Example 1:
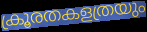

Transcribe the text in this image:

ക്രൂരതകളത്രയും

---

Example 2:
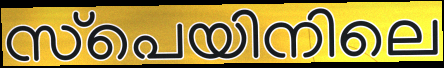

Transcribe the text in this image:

സ്‌പെയിനിലെ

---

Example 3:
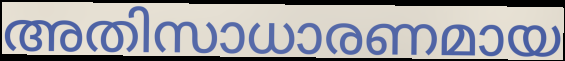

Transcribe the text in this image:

അതിസാധാരണമായ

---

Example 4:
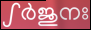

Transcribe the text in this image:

ഽർജുനഃ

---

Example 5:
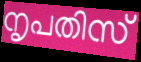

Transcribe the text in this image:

നൃപതിസ്